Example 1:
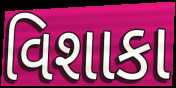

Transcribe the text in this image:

વિશાકા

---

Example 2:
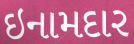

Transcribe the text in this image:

ઇનામદાર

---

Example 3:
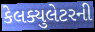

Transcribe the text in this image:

કેલક્યુલેટરની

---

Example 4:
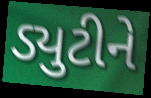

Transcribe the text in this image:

ડ્યુટીને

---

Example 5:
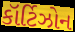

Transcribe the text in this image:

કૉર્ટિઝોન